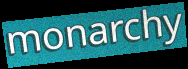
monarchy